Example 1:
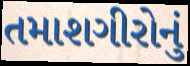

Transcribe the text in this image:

તમાશગીરોનું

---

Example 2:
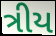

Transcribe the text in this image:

ત્રીય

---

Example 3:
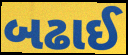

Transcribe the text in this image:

બઢાઈ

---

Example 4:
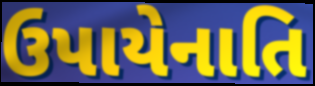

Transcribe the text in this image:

ઉપાયેનાતિ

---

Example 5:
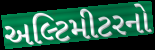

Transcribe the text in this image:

અલ્ટિમીટરનો